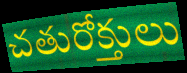
చతురోక్తులు